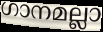
ഗാനമല്ലാ